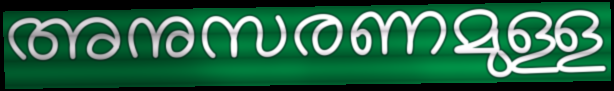
അനുസരണമുള്ള